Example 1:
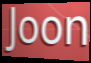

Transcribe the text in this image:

Joon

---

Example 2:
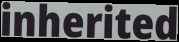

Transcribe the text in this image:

inherited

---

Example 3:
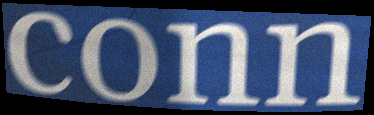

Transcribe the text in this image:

conn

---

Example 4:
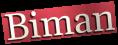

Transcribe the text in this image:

Biman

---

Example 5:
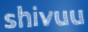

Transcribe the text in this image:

shivuu